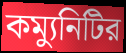
কম্যুনিটির